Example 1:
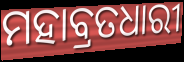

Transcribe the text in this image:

ମହାବ୍ରତଧାରୀ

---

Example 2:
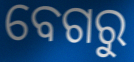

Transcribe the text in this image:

ବେଗରୁ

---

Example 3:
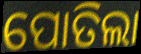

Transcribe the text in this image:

ପୋତିଲା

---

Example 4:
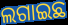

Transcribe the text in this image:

ଲଗାଇଛ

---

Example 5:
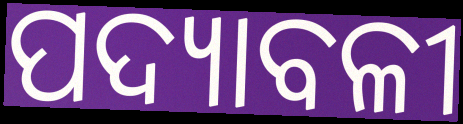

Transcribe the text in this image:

ପଦ୍ୟାବଳୀ